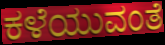
ಕಳೆಯುವಂತೆ